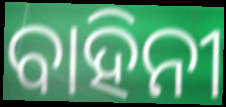
ବାହିନୀ